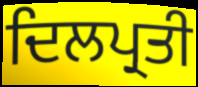
ਦਿਲਪ੍ਰਤੀ